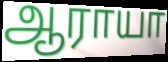
ஆராயா